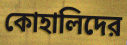
কোহালিদের